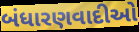
બંધારણવાદીઓ